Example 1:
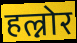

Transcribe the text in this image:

हल्नोर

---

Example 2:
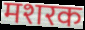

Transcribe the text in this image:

मशरक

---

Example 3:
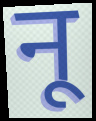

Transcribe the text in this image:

नू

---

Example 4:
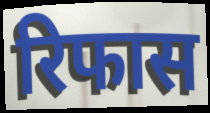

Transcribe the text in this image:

रिफास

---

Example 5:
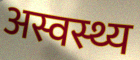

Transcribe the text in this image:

अस्वस्थ्य